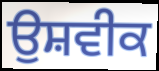
ਉਸ਼ਵੀਕ